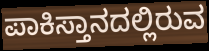
ಪಾಕಿಸ್ತಾನದಲ್ಲಿರುವ